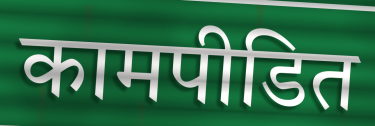
कामपीडित